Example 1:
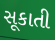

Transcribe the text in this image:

સૂકાતી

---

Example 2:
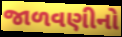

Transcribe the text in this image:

જાળવણીનો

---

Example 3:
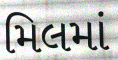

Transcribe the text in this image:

મિલમાં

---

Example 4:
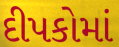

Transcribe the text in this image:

દીપકોમાં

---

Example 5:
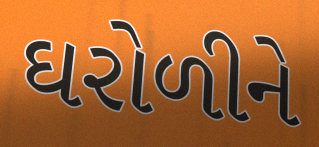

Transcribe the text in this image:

ઘરોળીને